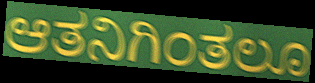
ಆತನಿಗಿಂತಲೂ